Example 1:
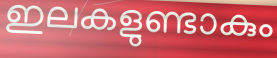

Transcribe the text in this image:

ഇലകളുണ്ടാകും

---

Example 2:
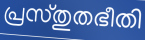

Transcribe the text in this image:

പ്രസ്തുതഭീതി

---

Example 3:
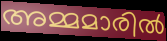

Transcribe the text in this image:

അമ്മമാരിൽ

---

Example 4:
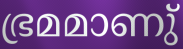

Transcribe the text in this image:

ഭ്രമമാണു്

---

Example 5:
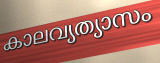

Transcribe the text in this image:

കാലവ്യത്യാസം